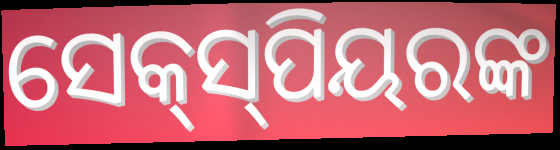
ସେକ୍‌ସ୍‌ପିୟରଙ୍କ